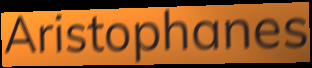
Aristophanes